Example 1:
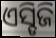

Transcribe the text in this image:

ଏସ୍ଡିଜି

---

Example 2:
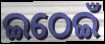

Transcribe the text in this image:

ଇଠେଇଁ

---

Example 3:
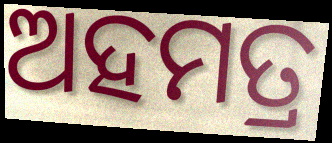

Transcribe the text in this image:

ଅହମତ୍ର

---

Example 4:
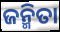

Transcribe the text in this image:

ଜନ୍ମିତା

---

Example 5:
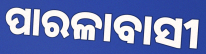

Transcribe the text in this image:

ପାରଳାବାସୀ